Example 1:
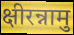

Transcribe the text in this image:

क्षीरन्नामु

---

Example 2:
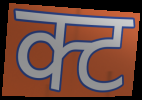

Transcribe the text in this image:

क्ट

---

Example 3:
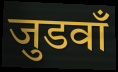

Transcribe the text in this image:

जुडवाँ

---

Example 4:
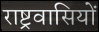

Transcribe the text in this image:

राष्ट्रवासियों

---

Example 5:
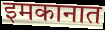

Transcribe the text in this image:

इमकानात